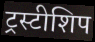
ट्रस्टीशिप